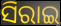
ସିରାଇ